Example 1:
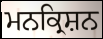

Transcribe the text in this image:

ਮਨਕ੍ਰਿਸ਼ਨ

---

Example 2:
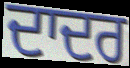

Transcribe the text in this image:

ਦਾਦਰ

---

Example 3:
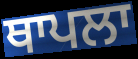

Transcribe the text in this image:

ਥਾਪਲਾ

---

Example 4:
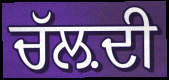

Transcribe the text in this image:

ਚੱਲ਼ਦੀ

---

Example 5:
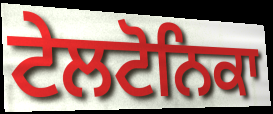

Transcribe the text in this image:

ਟੇਲਟੋਨਿਕਾ